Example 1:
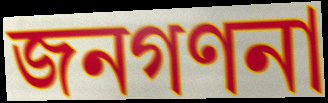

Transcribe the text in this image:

জনগণনা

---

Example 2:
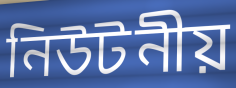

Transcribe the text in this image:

নিউটনীয়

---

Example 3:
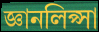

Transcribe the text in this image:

জ্ঞানলিপ্সা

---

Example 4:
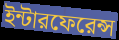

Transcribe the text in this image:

ইন্টারফেরেন্স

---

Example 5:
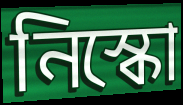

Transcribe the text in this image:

নিস্কো